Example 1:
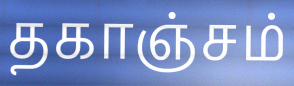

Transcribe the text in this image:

தகாஞ்சம்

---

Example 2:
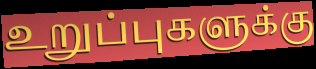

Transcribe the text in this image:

உறுப்புகளுக்கு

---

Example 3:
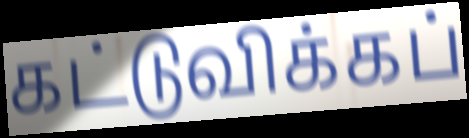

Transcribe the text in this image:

கட்டுவிக்கப்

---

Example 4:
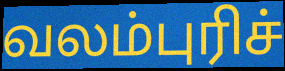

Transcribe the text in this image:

வலம்புரிச்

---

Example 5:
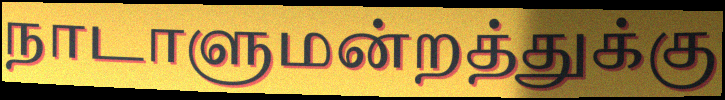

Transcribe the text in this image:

நாடாளுமன்றத்துக்கு